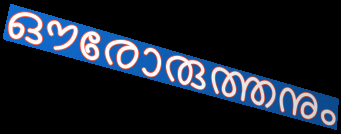
ഔരോരുത്തനും